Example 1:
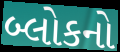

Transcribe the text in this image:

બ્લોકનો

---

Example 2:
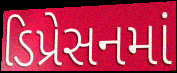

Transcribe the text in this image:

ડિપ્રેસનમાં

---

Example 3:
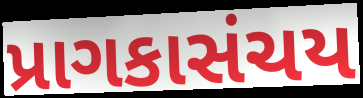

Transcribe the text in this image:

પ્રાગકાસંચય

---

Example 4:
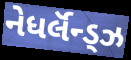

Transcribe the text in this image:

નેધર્લૅન્ડ્ઝ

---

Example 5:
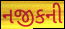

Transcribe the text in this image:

નજીકની